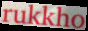
rukkho